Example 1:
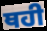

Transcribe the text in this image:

ਥਹੀ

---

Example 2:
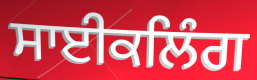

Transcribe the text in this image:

ਸਾਈਕਲਿੰਗ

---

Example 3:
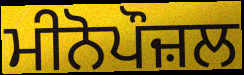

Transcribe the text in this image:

ਮੀਨੋਪੌਜ਼ਲ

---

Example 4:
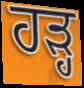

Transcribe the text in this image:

ਹੜ੍ਹ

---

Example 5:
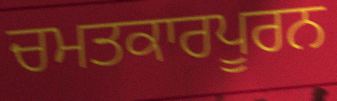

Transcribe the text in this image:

ਚਮਤਕਾਰਪੂਰਨ